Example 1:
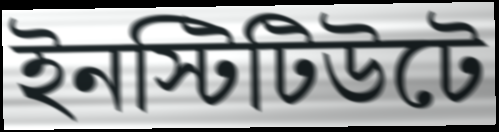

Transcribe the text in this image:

ইনস্টিটিউটে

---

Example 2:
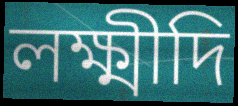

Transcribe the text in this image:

লক্ষ্মীদি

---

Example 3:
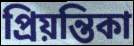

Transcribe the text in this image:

প্রিয়ন্তিকা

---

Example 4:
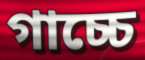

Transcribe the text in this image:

গাচ্চে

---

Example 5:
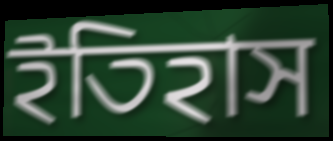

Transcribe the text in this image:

ইতিহাস